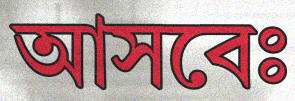
আসবেঃ